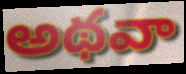
అథవా